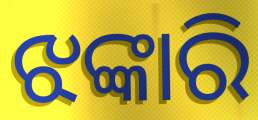
ଝଙ୍କାରି